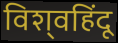
विश्वहिंदू